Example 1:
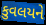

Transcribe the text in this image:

કુવલયને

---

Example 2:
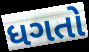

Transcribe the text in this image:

ધગતો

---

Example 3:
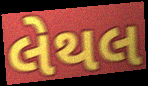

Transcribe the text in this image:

લેથલ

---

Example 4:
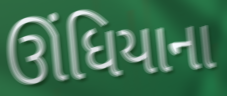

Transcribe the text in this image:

ઊંધિયાના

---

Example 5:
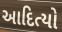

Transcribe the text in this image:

આદિત્યો